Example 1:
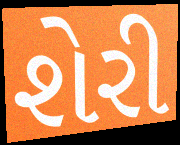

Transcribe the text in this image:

શેરી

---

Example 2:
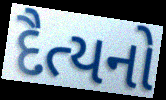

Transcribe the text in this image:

દૈત્યનો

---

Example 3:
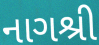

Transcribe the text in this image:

નાગશ્રી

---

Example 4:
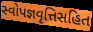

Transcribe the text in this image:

સ્વોપજ્ઞવૃત્તિસહિત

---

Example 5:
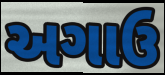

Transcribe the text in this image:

અગાઉ